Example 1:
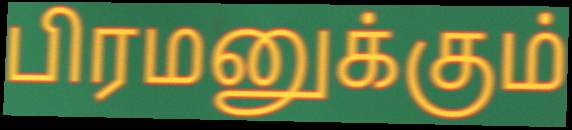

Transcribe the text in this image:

பிரமனுக்கும்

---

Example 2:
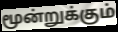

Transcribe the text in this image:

மூன்றுக்கும்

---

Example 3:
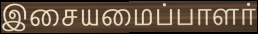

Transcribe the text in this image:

இசையமைப்பாளர்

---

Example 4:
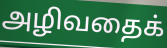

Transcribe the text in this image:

அழிவதைக்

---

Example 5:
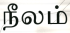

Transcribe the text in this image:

நீலம்